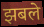
झबले